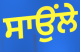
ਸਾਉਂਲੇ